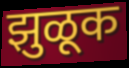
झुळूक